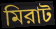
মিরাট